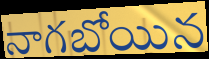
నాగబోయిన